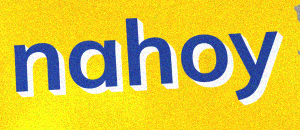
nahoy